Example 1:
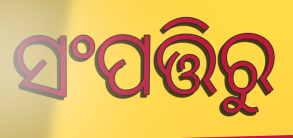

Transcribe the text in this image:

ସଂପତ୍ତିରୁ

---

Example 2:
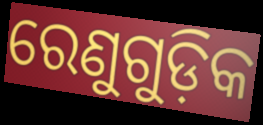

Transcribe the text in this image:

ରେଣୁଗୁଡ଼ିକ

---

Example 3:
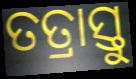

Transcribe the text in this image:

ତତ୍ରାସ୍ତୁ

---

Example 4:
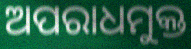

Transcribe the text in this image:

ଅପରାଧମୁକ୍ତ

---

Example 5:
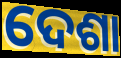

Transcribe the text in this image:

ଦେଶା